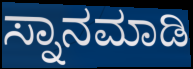
ಸ್ನಾನಮಾಡಿ